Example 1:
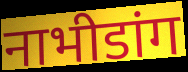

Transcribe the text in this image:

नाभीडांग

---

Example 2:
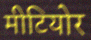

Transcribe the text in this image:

मीटियोर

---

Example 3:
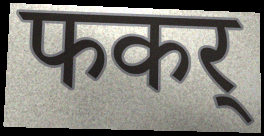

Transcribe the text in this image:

फकर्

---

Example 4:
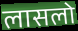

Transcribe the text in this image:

लासलो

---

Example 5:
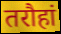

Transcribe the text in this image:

तरौहां